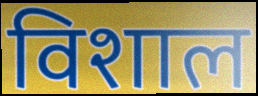
विशाल